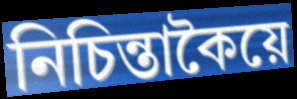
নিচিন্তাকৈয়ে